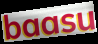
baasu